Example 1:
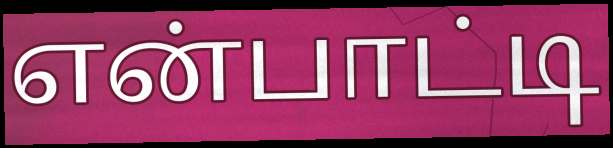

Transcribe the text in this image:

என்பாட்டி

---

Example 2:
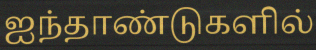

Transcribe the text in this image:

ஐந்தாண்டுகளில்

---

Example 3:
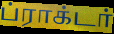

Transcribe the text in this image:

ப்ராக்டர்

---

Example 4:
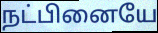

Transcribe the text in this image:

நட்பினையே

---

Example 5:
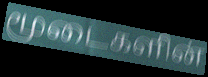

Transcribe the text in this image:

மூடைகளின்